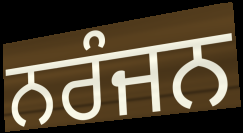
ਨਰੰਜਨ